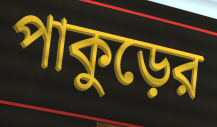
পাকুড়ের